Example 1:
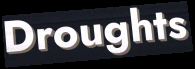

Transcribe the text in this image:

Droughts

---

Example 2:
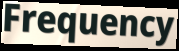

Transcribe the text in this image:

Frequency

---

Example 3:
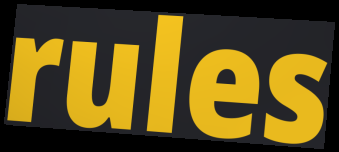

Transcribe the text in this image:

rules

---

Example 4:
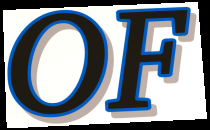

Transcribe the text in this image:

OF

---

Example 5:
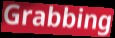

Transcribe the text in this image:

Grabbing